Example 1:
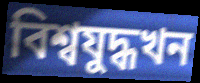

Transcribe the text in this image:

বিশ্বযুদ্ধখন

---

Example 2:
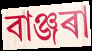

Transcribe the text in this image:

বাঞ্জৰা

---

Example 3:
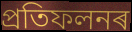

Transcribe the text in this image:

প্ৰতিফলনৰ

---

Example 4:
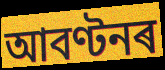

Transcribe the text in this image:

আবণ্টনৰ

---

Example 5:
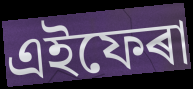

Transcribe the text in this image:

এইফেৰা